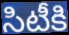
సిటీకి